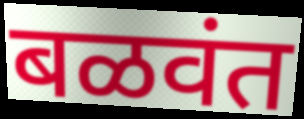
बळवंत